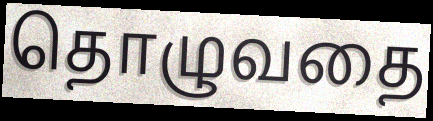
தொழுவதை